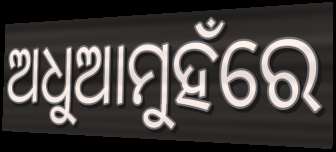
ଅଧୁଆମୁହଁରେ